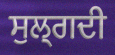
ਸੁਲ੍ਗਦੀ